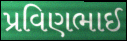
પ્રવિણભાઈ